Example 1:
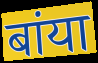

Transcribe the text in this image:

बांया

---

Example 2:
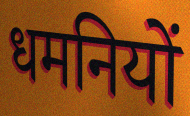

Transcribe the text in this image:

धमनियों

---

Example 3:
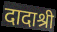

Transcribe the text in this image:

दादाश्री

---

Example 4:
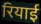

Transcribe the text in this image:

रियाई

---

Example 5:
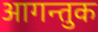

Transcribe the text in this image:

आगन्तुक